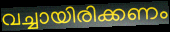
വച്ചായിരിക്കണം